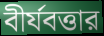
বীর্যবত্তার